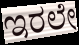
ಇರಲೇ